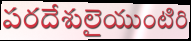
పరదేశులైయుంటిరి